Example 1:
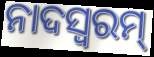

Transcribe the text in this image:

ନାଦସ୍ଵରମ୍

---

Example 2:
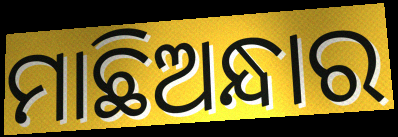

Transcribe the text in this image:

ମାଛିଅନ୍ଧାର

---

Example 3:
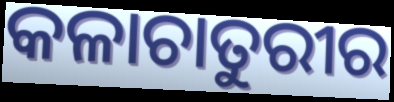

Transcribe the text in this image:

କଳାଚାତୁରୀର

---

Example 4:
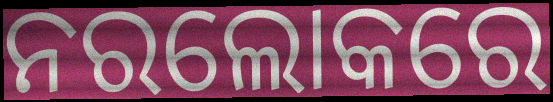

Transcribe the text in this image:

ନରଲୋକରେ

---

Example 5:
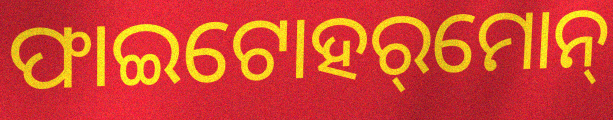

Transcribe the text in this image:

ଫାଇଟୋହର୍‌ମୋନ୍